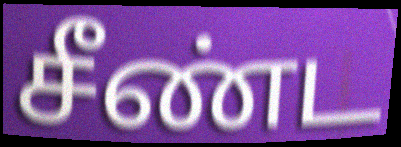
சீண்ட